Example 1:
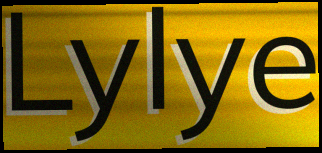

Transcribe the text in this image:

Lylye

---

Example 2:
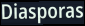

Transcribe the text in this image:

Diasporas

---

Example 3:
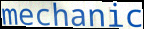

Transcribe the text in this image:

mechanic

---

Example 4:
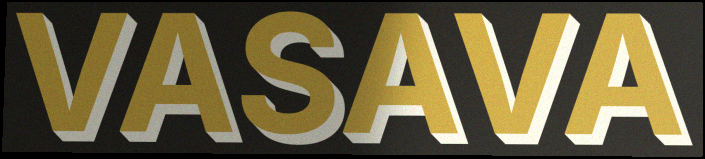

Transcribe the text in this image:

VASAVA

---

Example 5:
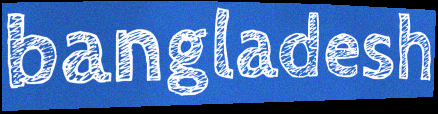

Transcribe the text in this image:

bangladesh